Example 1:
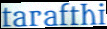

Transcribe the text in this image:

tarafthi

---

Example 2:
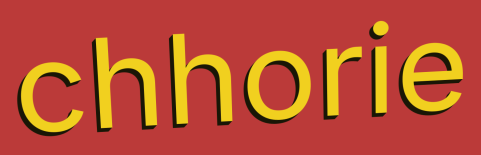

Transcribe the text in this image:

chhorie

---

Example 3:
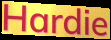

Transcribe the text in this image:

Hardie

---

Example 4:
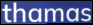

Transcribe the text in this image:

thamas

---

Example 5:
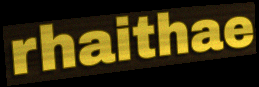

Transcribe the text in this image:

rhaithae